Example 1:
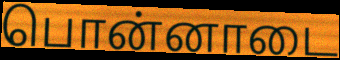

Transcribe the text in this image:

பொன்னாடை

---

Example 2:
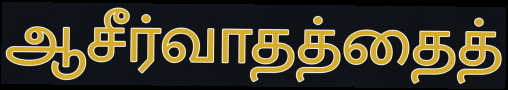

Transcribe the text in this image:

ஆசீர்வாதத்தைத்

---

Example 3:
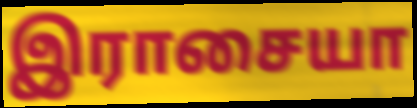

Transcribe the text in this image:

இராசையா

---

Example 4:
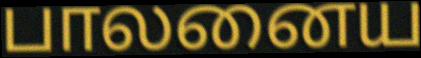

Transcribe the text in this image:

பாலனைய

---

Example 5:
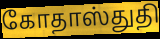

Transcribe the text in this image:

கோதாஸ்துதி